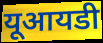
यूआयडी